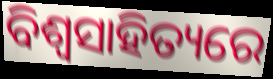
ବିଶ୍ବସାହିତ୍ୟରେ